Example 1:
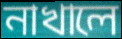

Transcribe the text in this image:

নাখালে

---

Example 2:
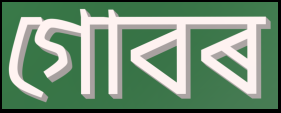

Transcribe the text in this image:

গোবৰ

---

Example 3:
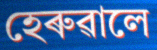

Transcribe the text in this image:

হেৰুৱালে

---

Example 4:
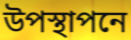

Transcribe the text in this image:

উপস্থাপনে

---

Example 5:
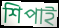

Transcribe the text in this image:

শিপাই